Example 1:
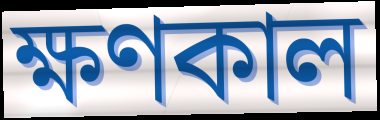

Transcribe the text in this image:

ক্ষণকাল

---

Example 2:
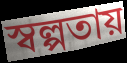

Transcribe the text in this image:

স্বল্পতায়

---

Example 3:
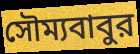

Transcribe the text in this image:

সৌম্যবাবুর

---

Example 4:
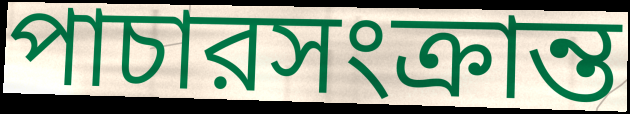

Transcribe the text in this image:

পাচারসংক্রান্ত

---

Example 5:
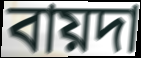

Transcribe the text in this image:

বায়দা